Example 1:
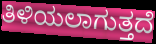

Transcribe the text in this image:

ತಿಳಿಯಲಾಗುತ್ತದೆ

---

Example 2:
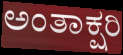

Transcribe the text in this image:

ಅಂತಾಕ್ಷರಿ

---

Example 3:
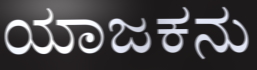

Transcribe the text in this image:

ಯಾಜಕನು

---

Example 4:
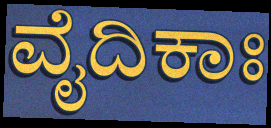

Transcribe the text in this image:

ವೈದಿಕಾಃ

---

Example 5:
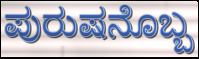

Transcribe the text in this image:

ಪುರುಷನೊಬ್ಬ